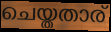
ചെയ്തതാര്